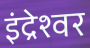
इंद्रेश्वर